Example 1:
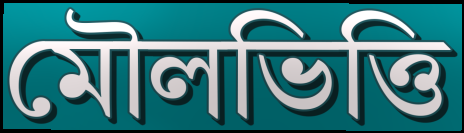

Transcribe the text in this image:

মৌলভিত্তি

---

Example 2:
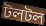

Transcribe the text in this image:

টলটল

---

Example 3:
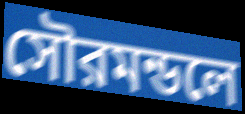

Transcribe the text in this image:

সৌরমন্ডলে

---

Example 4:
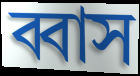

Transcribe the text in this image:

ব্বাস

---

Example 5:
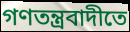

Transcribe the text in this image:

গণতন্ত্রবাদীতে